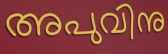
അപുവിനു